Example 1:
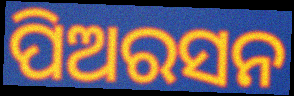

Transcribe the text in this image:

ପିଅରସନ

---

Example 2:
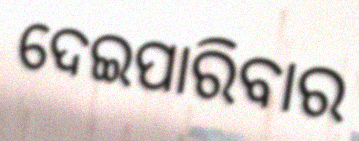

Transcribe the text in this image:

ଦେଇପାରିବାର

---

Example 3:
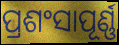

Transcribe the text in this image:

ପ୍ରଶଂସାପୂର୍ଣ୍ଣ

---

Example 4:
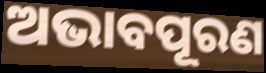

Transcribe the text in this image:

ଅଭାବପୂରଣ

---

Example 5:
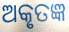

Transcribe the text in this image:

ଅକୃତଜ୍ଞ